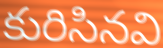
కురిసినవి